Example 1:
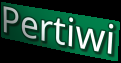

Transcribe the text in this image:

Pertiwi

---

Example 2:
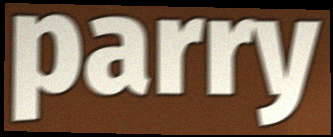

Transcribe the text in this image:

parry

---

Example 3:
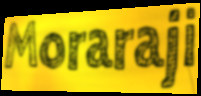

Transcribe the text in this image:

Moraraji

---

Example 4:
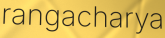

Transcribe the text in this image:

rangacharya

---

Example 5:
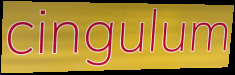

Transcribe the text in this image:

cingulum